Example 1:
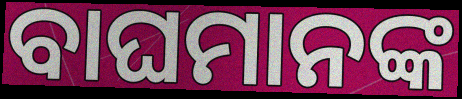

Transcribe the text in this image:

ବାଘମାନଙ୍କ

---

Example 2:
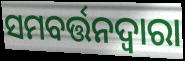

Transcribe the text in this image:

ସମବର୍ତ୍ତନଦ୍ୱାରା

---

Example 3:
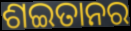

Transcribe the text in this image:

ଶଇତାନର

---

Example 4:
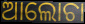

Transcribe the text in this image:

ଆଲୋଚା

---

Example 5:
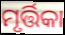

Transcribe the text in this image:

ମୃର୍ତ୍ତିକା